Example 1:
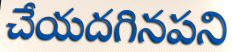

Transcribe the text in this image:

చేయదగినపని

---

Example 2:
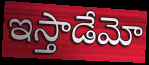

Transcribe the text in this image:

ఇస్తాడేమో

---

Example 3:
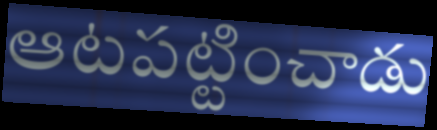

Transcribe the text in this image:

ఆటపట్టించాడు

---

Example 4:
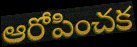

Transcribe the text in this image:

ఆరోపించక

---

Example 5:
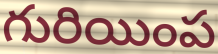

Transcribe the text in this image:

గురియింప